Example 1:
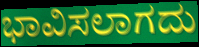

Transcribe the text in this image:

ಭಾವಿಸಲಾಗದು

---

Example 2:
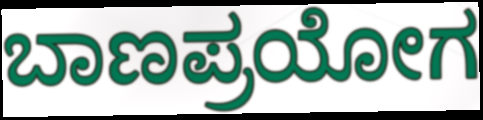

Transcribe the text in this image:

ಬಾಣಪ್ರಯೋಗ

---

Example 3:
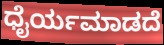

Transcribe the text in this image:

ಧೈರ್ಯಮಾಡದೆ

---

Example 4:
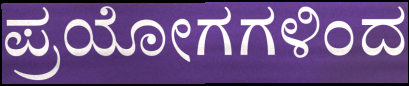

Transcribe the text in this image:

ಪ್ರಯೋಗಗಳಿಂದ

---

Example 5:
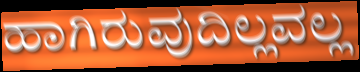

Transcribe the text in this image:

ಹಾಗಿರುವುದಿಲ್ಲವಲ್ಲ